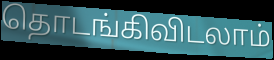
தொடங்கிவிடலாம்